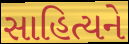
સાહિત્યને